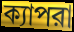
ক্যাপরা